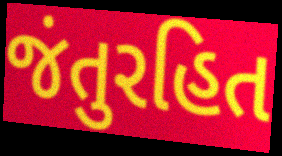
જંતુરહિત